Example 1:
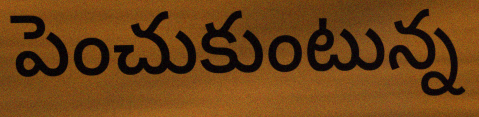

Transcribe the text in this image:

పెంచుకుంటున్న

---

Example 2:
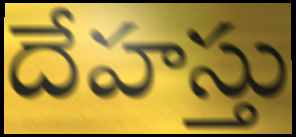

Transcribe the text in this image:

దేహస్తు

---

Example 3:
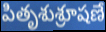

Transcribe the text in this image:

పితృశుశ్రూషణే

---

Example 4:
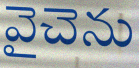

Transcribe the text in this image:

వైచెను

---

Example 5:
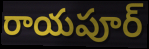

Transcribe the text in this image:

రాయపూర్